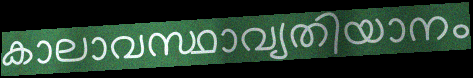
കാലാവസ്ഥാവ്യതിയാനം